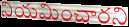
నియమించారని